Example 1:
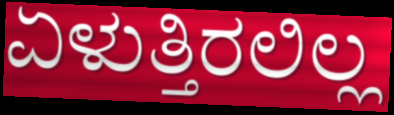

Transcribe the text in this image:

ಏಳುತ್ತಿರಲಿಲ್ಲ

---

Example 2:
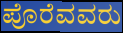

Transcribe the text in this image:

ಪೊರೆವವರು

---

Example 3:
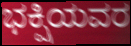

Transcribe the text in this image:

ಭಕ್ಷಿಯವರ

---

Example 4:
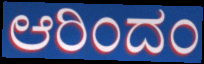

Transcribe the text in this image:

ಆರಿಂದಂ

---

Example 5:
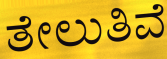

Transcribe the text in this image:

ತೇಲುತಿವೆ